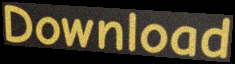
Download